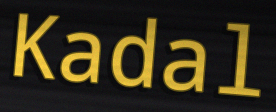
Kadal